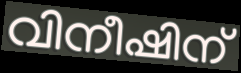
വിനീഷിന്